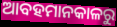
ଆବହମାନକାଳରୁ